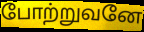
போற்றுவனே